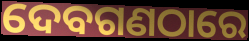
ଦେବଗଣଠାରେ